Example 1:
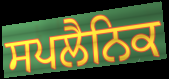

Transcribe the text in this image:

ਸਪਲੈਨਿਕ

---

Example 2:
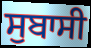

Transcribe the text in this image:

ਸੁਬਾਸੀ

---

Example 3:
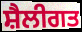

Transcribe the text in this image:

ਸ਼ੈਲੀਗਤ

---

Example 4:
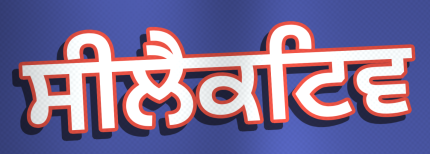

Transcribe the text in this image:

ਸੀਲੈਕਟਿਵ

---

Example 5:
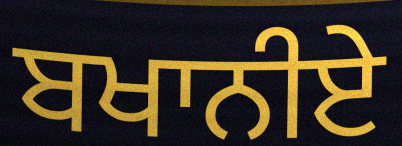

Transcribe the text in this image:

ਬਖਾਨੀਏ